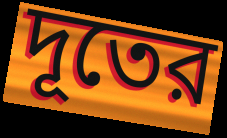
দূতের